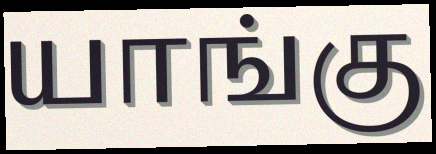
யாங்கு